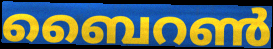
ബൈറൺ